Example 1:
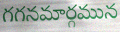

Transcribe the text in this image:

గగనమార్గమున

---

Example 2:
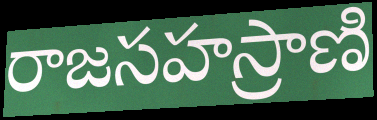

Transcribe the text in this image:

రాజసహస్రాణి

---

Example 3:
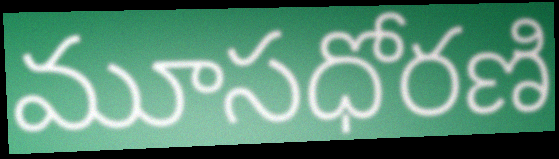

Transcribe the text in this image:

మూసధోరణి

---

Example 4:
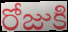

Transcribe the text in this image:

రోజుకి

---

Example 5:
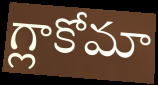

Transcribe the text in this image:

గ్లాకోమా